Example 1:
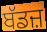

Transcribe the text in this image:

ਬੱਡਜ਼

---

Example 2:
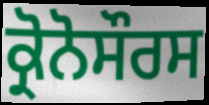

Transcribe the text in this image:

ਕ੍ਰੋਨੋਸੌਰਸ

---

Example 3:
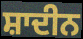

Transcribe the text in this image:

ਸ਼ਾਦੀਨ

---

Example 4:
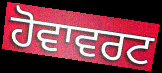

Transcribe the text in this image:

ਹੋਵਾਵਰਟ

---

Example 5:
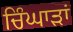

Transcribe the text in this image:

ਚਿੰਘਾੜਾਂ